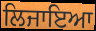
ਲਿਜਾਇਆ